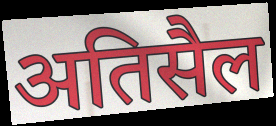
अतिसैल